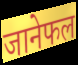
जानेफल